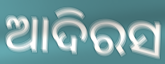
ଆଦିରସ